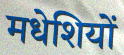
मधेशियों